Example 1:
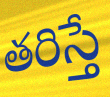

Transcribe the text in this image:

తరిస్తే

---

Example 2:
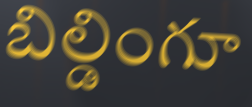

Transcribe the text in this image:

బిల్డింగూ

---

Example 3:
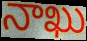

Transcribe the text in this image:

నాఖు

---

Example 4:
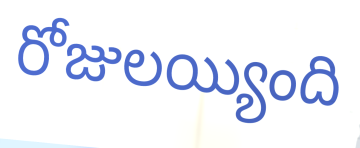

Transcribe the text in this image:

రోజులయ్యింది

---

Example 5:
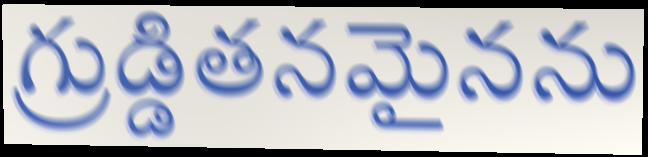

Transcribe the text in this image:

గ్రుడ్డితనమైనను